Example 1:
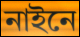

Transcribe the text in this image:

নাইনে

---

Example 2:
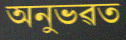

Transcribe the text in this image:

অনুভৱত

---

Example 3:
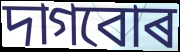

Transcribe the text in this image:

দাগবোৰ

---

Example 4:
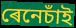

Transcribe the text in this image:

ৰেনেচাঁই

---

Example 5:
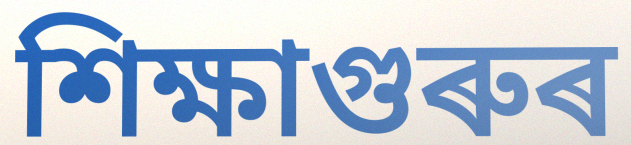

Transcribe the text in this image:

শিক্ষাগুৰুৰ